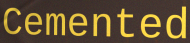
Cemented